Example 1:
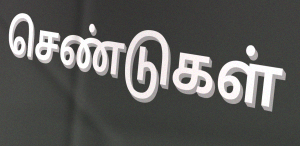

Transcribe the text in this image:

செண்டுகள்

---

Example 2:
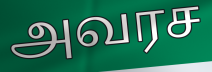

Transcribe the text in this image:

அவரச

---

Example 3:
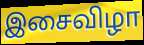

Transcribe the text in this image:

இசைவிழா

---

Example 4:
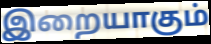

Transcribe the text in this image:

இறையாகும்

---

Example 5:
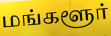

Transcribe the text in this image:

மங்களூர்